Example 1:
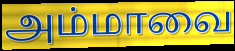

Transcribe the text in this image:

அம்மாவை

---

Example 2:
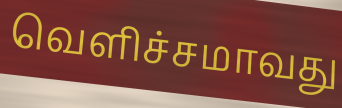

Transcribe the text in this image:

வெளிச்சமாவது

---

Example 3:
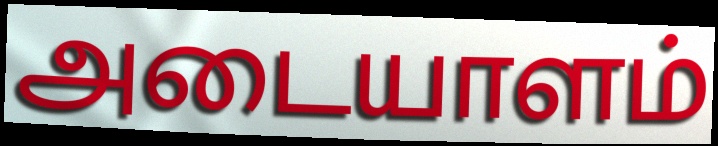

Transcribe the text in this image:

அடையாளம்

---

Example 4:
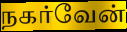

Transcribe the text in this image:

நகர்வேன்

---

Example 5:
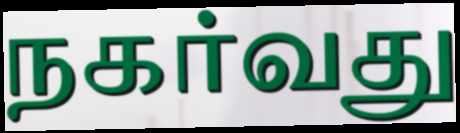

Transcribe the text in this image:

நகர்வது